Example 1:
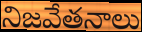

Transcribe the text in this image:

నిజవేతనాలు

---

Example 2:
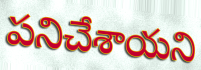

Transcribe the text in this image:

పనిచేశాయని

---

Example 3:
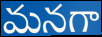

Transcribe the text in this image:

మనగా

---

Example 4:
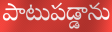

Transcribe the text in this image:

పాటుపడ్డాను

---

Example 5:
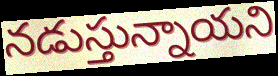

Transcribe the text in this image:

నడుస్తున్నాయని